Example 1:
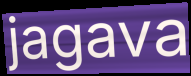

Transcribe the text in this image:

jagava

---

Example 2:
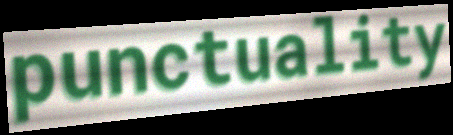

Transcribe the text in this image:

punctuality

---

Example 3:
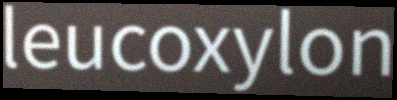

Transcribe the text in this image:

leucoxylon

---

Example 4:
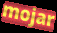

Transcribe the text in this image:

mojar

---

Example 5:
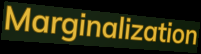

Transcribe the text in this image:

Marginalization